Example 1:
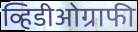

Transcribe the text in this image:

व्हिडीओग्राफी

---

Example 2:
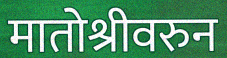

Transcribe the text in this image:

मातोश्रीवरुन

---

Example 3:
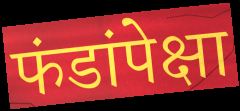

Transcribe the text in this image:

फंडांपेक्षा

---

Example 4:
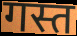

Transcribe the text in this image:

गस्त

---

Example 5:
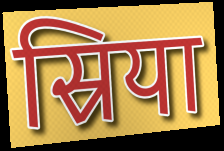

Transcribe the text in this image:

स्रिया